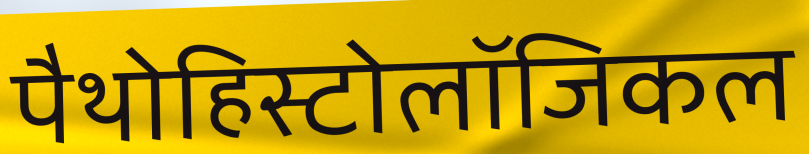
पैथोहिस्टोलॉजिकल